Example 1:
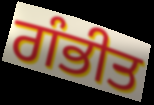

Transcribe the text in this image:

ਗੰਭੀਤ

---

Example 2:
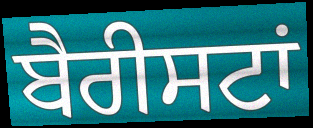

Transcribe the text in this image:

ਬੈਰੀਸਟਾਂ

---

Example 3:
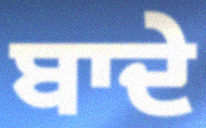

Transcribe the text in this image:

ਬਾਦੇ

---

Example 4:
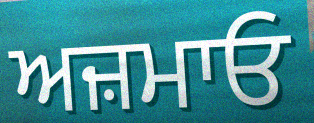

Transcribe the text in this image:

ਅਜ਼ਮਾਓ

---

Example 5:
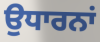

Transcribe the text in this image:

ਉਧਾਰਨਾਂ